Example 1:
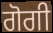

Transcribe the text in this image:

ਗੋਗੀ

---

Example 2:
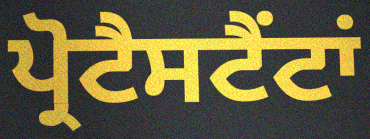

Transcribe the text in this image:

ਪ੍ਰੋਟੈਸਟੈਂਟਾਂ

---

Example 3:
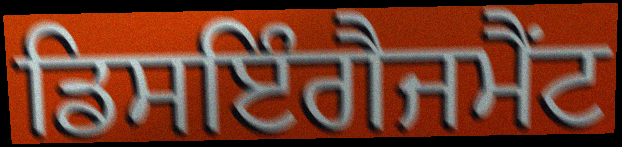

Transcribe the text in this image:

ਡਿਸਇੰਗੈਜਮੈਂਟ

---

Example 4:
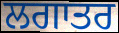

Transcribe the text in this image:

ਲਗਾਤਰ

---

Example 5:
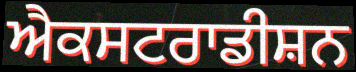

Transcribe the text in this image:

ਐਕਸਟਰਾਡੀਸ਼ਨ